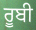
ਰੂਬੀ